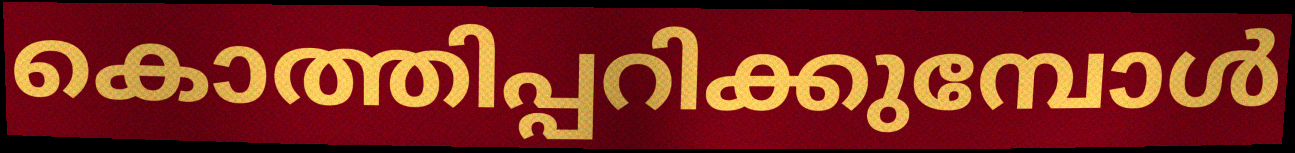
കൊത്തിപ്പറിക്കുമ്പോൾ